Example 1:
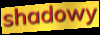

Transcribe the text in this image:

shadowy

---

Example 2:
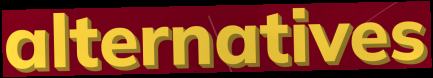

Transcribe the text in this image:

alternatives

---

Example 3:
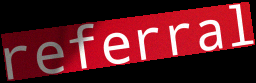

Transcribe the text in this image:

referral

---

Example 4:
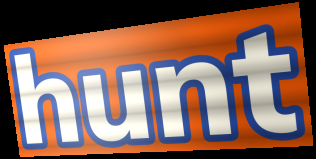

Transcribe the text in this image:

hunt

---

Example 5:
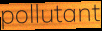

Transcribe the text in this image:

pollutant